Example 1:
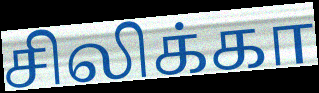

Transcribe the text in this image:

சிலிக்கா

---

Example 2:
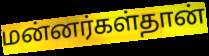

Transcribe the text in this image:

மன்னர்கள்தான்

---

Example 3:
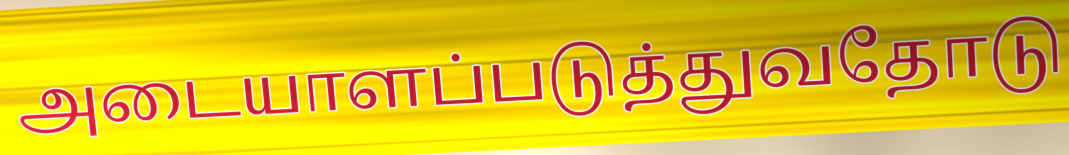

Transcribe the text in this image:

அடையாளப்படுத்துவதோடு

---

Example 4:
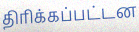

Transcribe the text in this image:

திரிக்கப்பட்டன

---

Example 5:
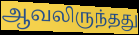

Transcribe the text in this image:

ஆவலிருந்தது